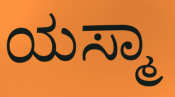
ಯಸ್ಮಾ